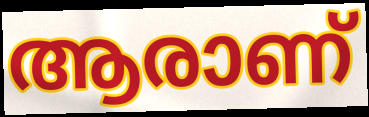
ആരാണ്